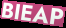
BIEAP